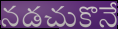
నడచుకొనే